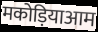
मकोड़ियाआम